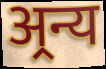
अ्रन्य